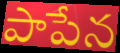
పాపేన